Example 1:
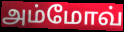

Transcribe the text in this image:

அம்மோவ்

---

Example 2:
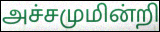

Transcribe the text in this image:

அச்சமுமின்றி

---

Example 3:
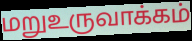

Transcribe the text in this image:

மறுஉருவாக்கம்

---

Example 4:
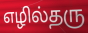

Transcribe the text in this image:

எழில்தரு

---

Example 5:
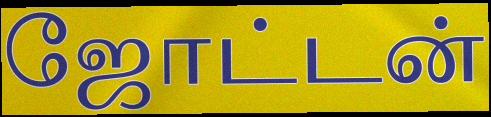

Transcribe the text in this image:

ஜோட்டன்